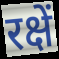
रक्षें